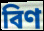
বিণ